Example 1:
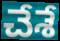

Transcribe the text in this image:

చేశే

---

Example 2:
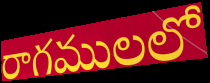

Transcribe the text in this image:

రాగములలో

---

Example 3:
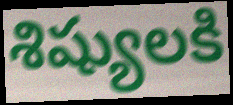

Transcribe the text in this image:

శిష్యులకి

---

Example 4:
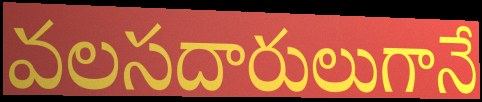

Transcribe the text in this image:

వలసదారులుగానే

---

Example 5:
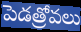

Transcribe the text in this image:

పెడత్రోవలు